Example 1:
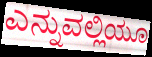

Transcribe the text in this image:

ಎನ್ನುವಲ್ಲಿಯೂ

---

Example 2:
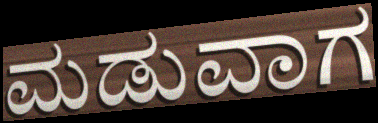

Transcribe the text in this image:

ಮಡುವಾಗ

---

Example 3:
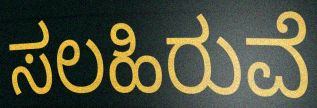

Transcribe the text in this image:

ಸಲಹಿರುವೆ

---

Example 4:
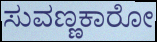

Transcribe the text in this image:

ಸುವಣ್ಣಕಾರೋ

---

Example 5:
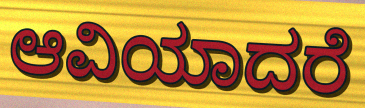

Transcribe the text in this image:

ಆವಿಯಾದರೆ